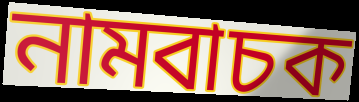
নামবাচক